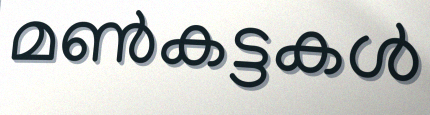
മൺകട്ടകൾ